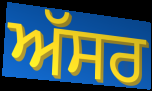
ਅੱਸਰ